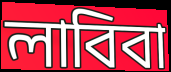
লাবিবা